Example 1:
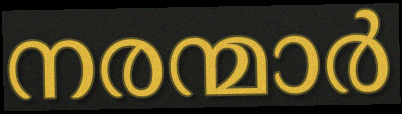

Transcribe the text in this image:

നരന്മാർ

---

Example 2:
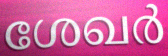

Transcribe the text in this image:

ശേഖർ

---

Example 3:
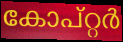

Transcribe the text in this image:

കോപ്റ്റർ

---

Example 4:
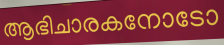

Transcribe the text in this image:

ആഭിചാരകനോടോ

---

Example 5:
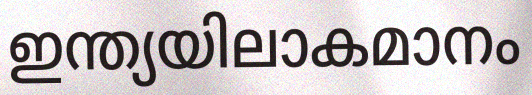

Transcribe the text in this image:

ഇന്ത്യയിലാകമാനം